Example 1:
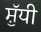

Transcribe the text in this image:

ਸ਼ੁੱਧੀ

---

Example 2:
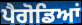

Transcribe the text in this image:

ਪੈਗੋਡਿਆਂ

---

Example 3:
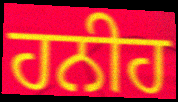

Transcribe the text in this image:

ਹਨੀਹ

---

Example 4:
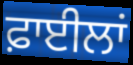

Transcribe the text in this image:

ਫ਼ਾਈਲਾਂ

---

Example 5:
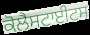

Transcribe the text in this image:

ਕੋਲੈਸਟਾਈਟਸ